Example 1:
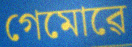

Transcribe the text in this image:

গেমোৱে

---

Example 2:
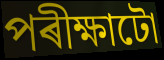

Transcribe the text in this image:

পৰীক্ষাটো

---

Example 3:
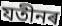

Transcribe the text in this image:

যতীনৰ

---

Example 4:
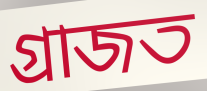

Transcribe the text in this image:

গ্ৰাজত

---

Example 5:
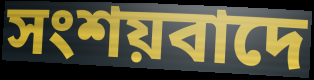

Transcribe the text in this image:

সংশয়বাদে